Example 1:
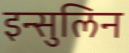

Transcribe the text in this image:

इन्सुलिन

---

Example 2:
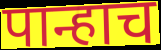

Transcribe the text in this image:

पान्हाच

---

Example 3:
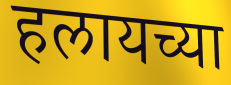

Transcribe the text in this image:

हलायच्या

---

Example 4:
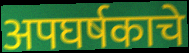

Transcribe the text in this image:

अपघर्षकाचे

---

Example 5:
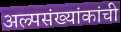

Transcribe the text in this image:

अल्पसंख्यांकांची